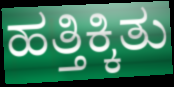
ಹತ್ತಿಕ್ಕಿತು